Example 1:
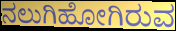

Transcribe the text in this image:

ನಲುಗಿಹೋಗಿರುವ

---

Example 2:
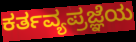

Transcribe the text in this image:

ಕರ್ತವ್ಯಪ್ರಜ್ಞೆಯ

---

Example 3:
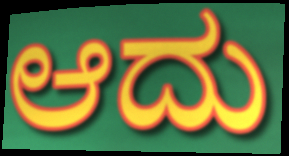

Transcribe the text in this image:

ಆದು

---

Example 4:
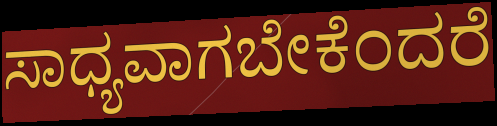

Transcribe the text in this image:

ಸಾಧ್ಯವಾಗಬೇಕೆಂದರೆ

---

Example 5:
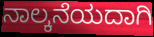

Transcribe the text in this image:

ನಾಲ್ಕನೆಯದಾಗಿ